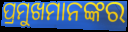
ପ୍ରମୁଖମାନଙ୍କର